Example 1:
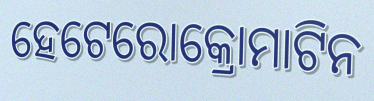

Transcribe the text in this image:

ହେଟେରୋକ୍ରୋମାଟିନ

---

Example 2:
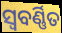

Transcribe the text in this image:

ସ୍ୱବର୍ଣ୍ଣିତ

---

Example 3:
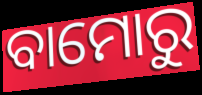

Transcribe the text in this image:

ବାମୋରୁ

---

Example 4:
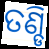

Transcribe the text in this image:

ତଣ୍ଡି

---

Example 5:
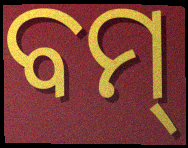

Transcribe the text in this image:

ବମ୍